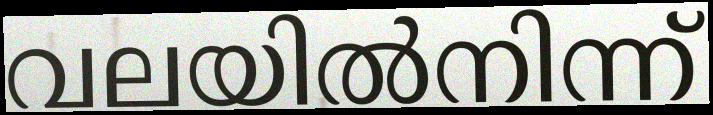
വലയിൽനിന്ന്